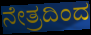
ನೇತ್ರದಿಂದ